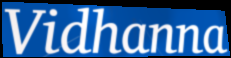
Vidhanna